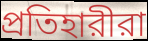
প্রতিহারীরা